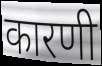
कारणी